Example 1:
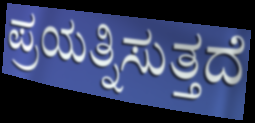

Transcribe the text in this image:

ಪ್ರಯತ್ನಿಸುತ್ತದೆ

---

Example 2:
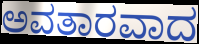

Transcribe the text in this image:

ಅವತಾರವಾದ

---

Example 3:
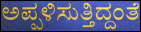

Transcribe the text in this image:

ಅಪ್ಪಳಿಸುತ್ತಿದ್ದಂತೆ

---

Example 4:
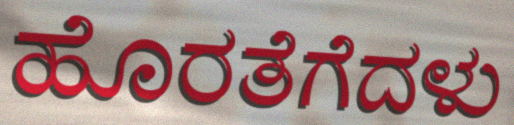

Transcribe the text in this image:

ಹೊರತೆಗೆದಳು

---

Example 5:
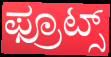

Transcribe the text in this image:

ಫ್ರೂಟ್ಸ್